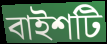
বাইশটি